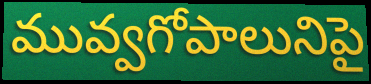
మువ్వగోపాలునిపై